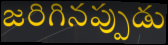
జరిగినప్పుడు